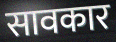
सावकार